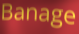
Banage